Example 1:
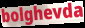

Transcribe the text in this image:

bolghevda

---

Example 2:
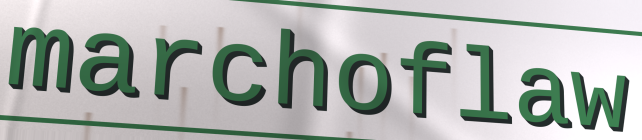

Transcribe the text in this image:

marchoflaw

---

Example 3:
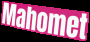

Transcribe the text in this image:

Mahomet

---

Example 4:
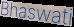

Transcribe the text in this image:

Bhaswati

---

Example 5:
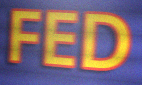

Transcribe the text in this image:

FED